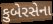
કુબેરસેના